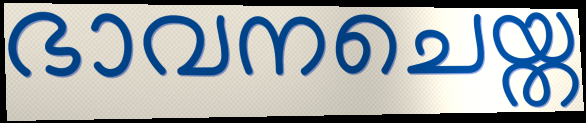
ഭാവനചെയ്ത